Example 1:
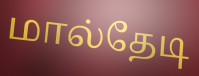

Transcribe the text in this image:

மால்தேடி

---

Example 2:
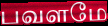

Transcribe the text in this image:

பவளமே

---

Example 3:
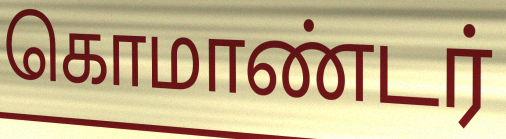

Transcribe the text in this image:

கொமாண்டர்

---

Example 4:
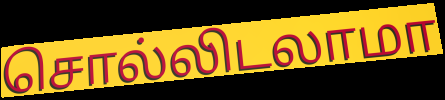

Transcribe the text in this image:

சொல்லிடலாமா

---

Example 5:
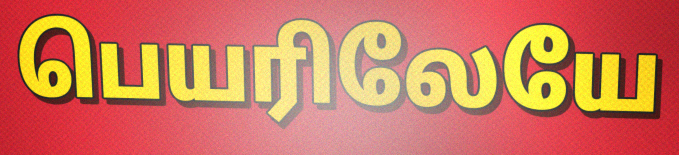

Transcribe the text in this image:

பெயரிலேயே